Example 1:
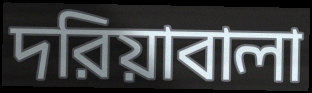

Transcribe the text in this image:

দরিয়াবালা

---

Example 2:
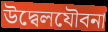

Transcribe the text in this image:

উদ্বেলযৌবনা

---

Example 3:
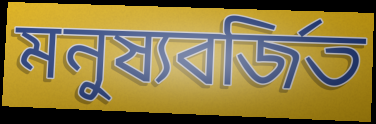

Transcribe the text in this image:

মনুষ্যবর্জিত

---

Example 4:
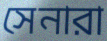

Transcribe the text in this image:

সেনারা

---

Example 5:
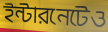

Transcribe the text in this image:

ইন্টারনেটেও